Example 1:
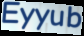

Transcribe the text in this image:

Eyyub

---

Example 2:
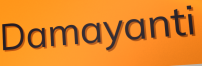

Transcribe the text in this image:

Damayanti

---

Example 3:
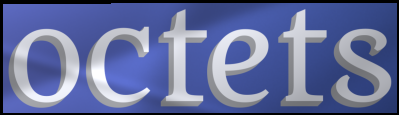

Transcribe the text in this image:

octets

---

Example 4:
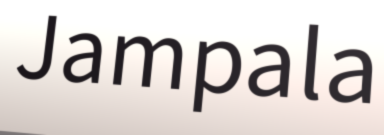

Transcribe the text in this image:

Jampala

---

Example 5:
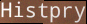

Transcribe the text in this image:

Histpry